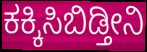
ಕಕ್ಕಿಸಿಬಿಡ್ತೀನಿ